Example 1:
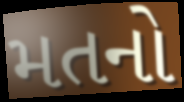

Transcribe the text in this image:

મતનો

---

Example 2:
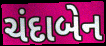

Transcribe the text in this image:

ચંદાબેન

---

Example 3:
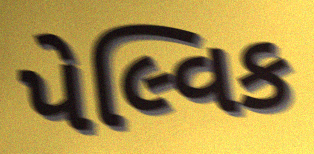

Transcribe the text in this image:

પેલ્વિક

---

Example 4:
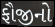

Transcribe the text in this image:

ફૌજીનો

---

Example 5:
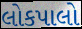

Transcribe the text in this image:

લોકપાલો